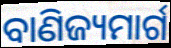
ବାଣିଜ୍ୟମାର୍ଗ